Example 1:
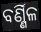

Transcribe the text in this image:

ବର୍ଣ୍ଣିଳ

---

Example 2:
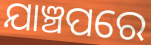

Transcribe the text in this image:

ଯାଞ୍ଚପରେ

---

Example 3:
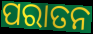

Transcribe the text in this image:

ପରାତନ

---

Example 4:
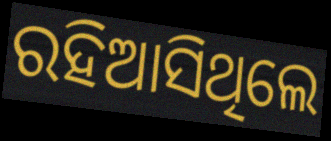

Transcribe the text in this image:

ରହିଆସିଥିଲେ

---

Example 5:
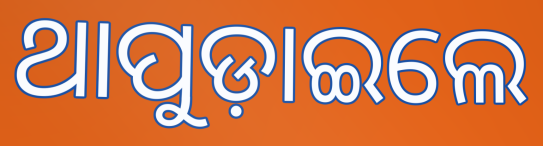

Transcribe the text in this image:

ଥାପୁଡ଼ାଇଲେ